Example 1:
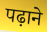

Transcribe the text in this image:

पढ़ाने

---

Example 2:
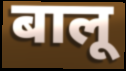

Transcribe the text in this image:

बालू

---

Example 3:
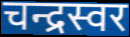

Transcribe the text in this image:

चन्द्रस्वर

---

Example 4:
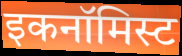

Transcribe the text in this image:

इकनॉमिस्‍ट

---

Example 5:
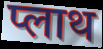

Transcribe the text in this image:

प्लाथ